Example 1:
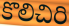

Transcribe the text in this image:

కొలిచిరి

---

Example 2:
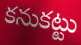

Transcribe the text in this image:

కనుకట్టు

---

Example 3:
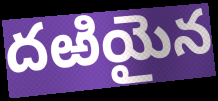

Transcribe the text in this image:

దఱియైన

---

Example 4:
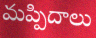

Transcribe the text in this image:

మప్పిదాలు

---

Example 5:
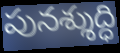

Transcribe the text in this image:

పునశ్శుద్ధి